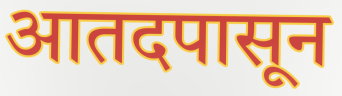
आतदपासून